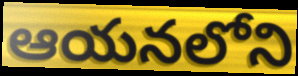
ఆయనలోని